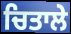
ਚਿਤਾਲੇ